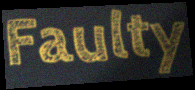
Faulty